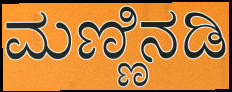
ಮಣ್ಣಿನಡಿ